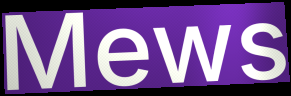
Mews